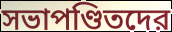
সভাপণ্ডিতদের